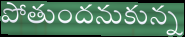
పోతుందనుకున్న